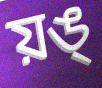
য়ঙ্